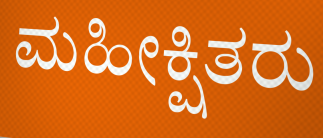
ಮಹೀಕ್ಷಿತರು